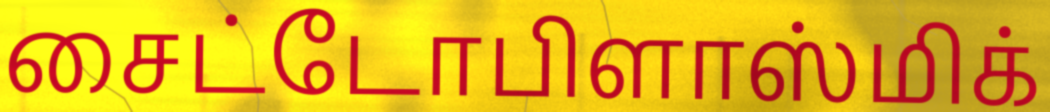
சைட்டோபிளாஸ்மிக்